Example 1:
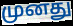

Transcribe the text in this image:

முனது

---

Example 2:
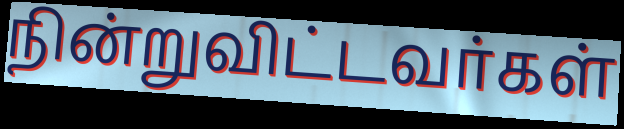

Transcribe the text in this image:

நின்றுவிட்டவர்கள்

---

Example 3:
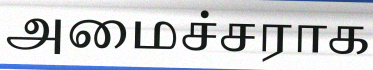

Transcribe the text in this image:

அமைச்சராக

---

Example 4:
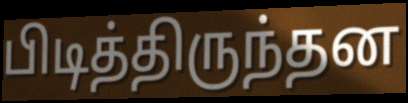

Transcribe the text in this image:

பிடித்திருந்தன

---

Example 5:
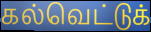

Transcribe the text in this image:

கல்வெட்டுக்